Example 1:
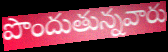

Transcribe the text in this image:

పొందుతున్నవారు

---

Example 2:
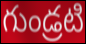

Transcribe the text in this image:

గుండ్రటి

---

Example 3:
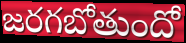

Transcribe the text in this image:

జరగబోతుందో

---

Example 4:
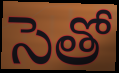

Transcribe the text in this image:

సెతో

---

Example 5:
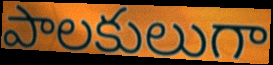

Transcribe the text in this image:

పాలకులుగా